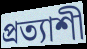
প্রত্যাশী